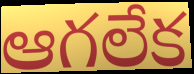
ఆగలేక